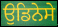
ਉਡਿਨੇਸੇ